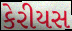
કેરીયસ